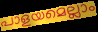
പാളയമെല്ലാം